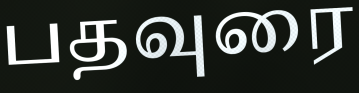
பதவுரை